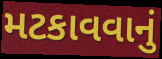
મટકાવવાનું